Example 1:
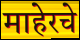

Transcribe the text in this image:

माहेरचे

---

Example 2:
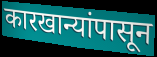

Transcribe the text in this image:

कारखान्यांपासून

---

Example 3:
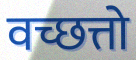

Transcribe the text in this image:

वच्छत्तो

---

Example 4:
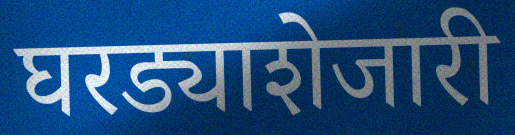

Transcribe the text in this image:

घरड्याशेजारी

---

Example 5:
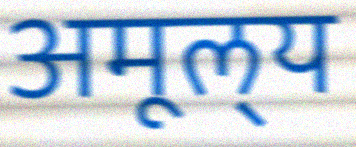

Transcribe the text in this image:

अमूल्य